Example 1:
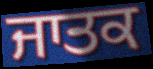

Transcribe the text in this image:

ਜਾਤਕ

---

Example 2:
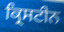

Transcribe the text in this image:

ਕ੍ਰਿਸਟੀਨ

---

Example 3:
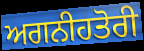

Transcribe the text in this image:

ਅਗਨੀਹਤੋਰੀ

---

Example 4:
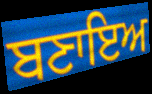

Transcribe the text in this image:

ਬਣਾਇਅ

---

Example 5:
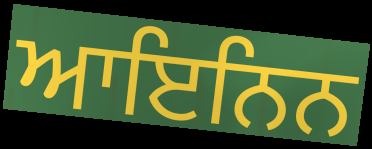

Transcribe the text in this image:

ਆਇਨਿਨ